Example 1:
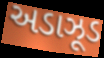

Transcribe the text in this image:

અડાઝૂડ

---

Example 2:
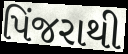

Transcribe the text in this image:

પિંજરાથી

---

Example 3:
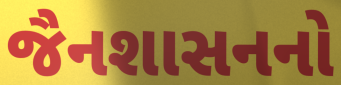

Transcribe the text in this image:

જૈનશાસનનો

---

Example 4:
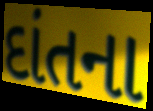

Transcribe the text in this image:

દાંતના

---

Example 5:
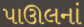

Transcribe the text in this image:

પાઊલનાં